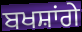
ਬਖਸ਼ਾਂਗੇ